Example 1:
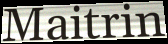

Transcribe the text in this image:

Maitrin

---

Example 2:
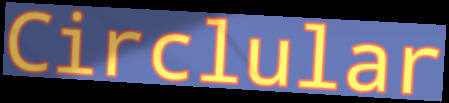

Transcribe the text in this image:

Circlular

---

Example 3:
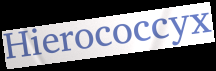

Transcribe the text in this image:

Hierococcyx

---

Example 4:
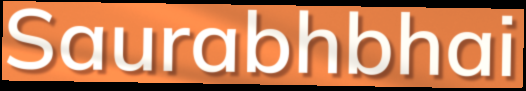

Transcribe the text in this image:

Saurabhbhai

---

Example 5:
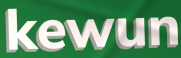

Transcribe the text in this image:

kewun